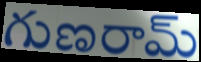
గుణరామ్